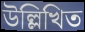
উল্লিখিত